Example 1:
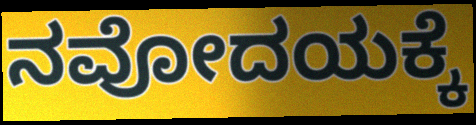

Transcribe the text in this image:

ನವೋದಯಕ್ಕೆ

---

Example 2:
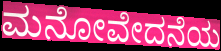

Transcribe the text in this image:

ಮನೋವೇದನೆಯ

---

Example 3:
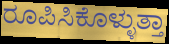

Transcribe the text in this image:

ರೂಪಿಸಿಕೊಳ್ಳುತ್ತಾ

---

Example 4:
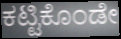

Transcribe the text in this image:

ಕಟ್ಟಿಕೊಂಡೇ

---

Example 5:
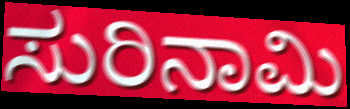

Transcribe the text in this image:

ಸುರಿನಾಮಿ